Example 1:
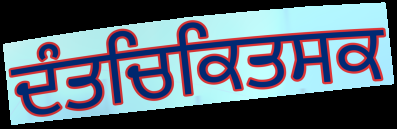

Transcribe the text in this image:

ਦੰਤਚਿਕਿਤਸਕ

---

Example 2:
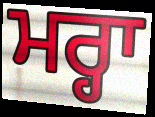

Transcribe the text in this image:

ਮਰ੍ਹਾ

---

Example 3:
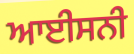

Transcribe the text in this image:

ਆਈਸਨੀ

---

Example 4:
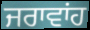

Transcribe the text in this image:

ਜਰਾਵਾਂਹ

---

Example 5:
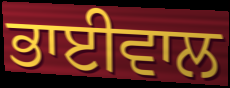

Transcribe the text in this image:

ਭਾਈਵਾਲ